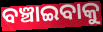
ବଞ୍ଚାଇବାକୁ